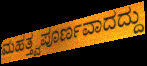
ಮಹತ್ತ್ವಪೂರ್ಣವಾದದ್ದು